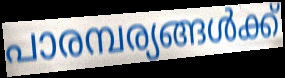
പാരമ്പര്യങ്ങൾക്ക്